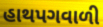
હાથપગવાળી